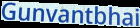
Gunvantbhai